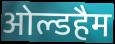
ओल्डहैम